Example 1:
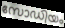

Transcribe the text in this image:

സോഡിയം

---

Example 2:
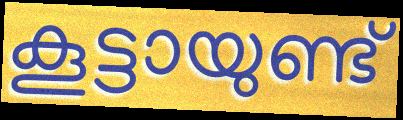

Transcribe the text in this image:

കൂട്ടായുണ്ട്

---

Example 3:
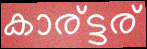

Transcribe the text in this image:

കാര്ട്ടര്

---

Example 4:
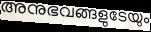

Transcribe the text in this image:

അനുഭവങ്ങളുടേയും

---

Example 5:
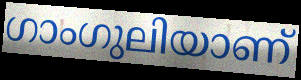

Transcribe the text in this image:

ഗാംഗുലിയാണ്